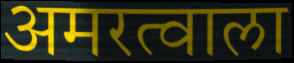
अमरत्वाला